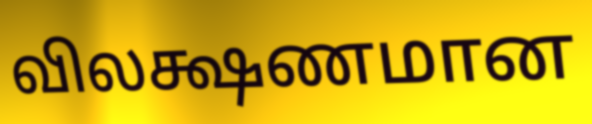
விலக்ஷணமான